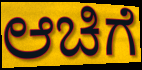
ಆಚಿಗೆ